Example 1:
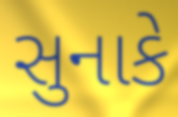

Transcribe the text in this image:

સુનાકે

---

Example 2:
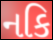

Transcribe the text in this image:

નકિ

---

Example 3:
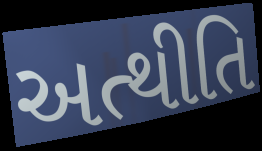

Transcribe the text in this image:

અત્થીતિ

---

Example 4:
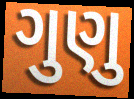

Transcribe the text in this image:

ગુણુ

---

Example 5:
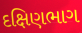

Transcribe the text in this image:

દક્ષિણભાગ